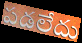
పడలేదు